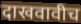
दाखवावीच